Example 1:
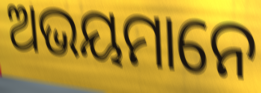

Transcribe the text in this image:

ଅଭୟମାନେ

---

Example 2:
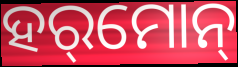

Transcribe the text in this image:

ହର୍‌ମୋନ୍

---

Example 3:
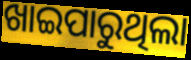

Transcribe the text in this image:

ଖାଇପାରୁଥିଲା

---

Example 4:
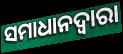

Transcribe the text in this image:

ସମାଧାନଦ୍ୱାରା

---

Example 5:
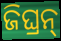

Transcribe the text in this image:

ଜିଘ୍ରନ୍